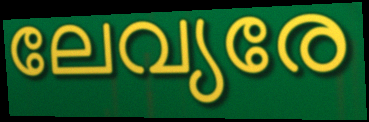
ലേവ്യരേ